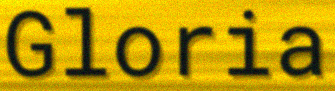
Gloria